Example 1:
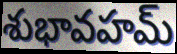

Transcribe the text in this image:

శుభావహమ్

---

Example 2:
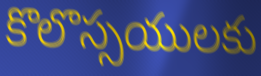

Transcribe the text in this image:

కొలొస్సయులకు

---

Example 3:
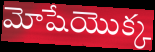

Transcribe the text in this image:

మోషేయొక్క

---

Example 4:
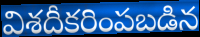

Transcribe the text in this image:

విశదీకరింపబడిన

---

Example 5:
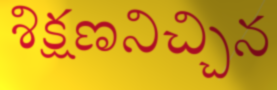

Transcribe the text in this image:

శిక్షణనిచ్చిన